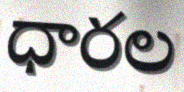
ధారల